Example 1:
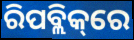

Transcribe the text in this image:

ରିପବ୍ଲିକ୍‌ରେ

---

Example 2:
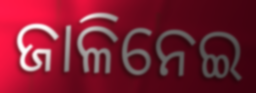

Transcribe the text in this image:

ଜାଳିନେଇ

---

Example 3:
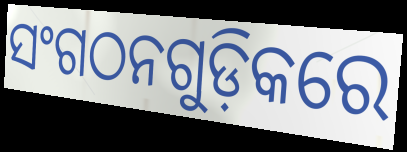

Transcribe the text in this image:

ସଂଗଠନଗୁଡ଼ିକରେ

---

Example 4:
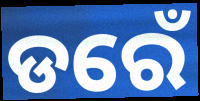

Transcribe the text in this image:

ଡରେଁ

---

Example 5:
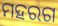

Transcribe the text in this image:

ମହରଗ